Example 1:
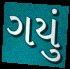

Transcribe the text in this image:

ગયું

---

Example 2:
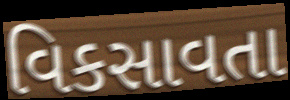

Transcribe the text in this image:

વિકસાવતા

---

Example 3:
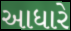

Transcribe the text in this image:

આધારે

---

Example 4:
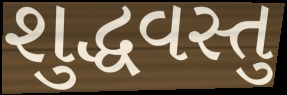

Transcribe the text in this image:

શુદ્ધવસ્તુ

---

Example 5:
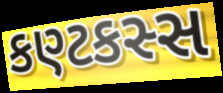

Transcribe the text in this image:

કણ્ટકસ્સ